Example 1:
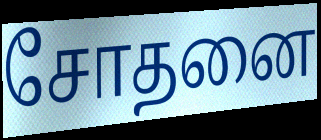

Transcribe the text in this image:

சோதனை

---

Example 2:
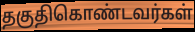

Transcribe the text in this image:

தகுதிகொண்டவர்கள்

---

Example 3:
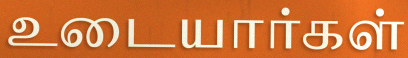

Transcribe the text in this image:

உடையார்கள்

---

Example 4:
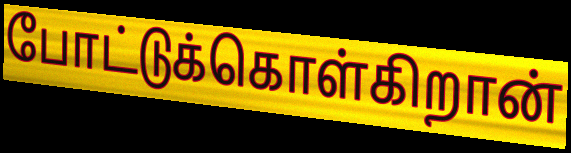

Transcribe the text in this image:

போட்டுக்கொள்கிறான்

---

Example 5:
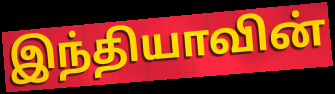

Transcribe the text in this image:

இந்தியாவின்